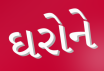
ઘરોને